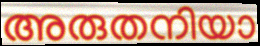
അരുതനിയാ